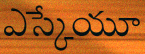
ఎస్కేయూ